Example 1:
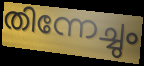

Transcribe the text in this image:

തിന്നേച്ചും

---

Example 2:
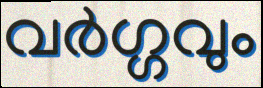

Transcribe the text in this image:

വർഗ്ഗവും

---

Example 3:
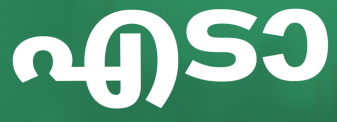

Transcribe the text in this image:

എടാ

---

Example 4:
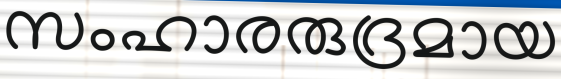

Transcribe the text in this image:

സംഹാരരുദ്രമായ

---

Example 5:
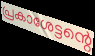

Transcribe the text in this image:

പ്രകാശേട്ടന്റെ